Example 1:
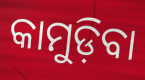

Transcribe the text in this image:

କାମୁଡ଼ିବା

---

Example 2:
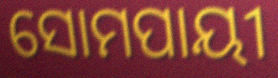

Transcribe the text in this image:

ସୋମପାୟୀ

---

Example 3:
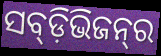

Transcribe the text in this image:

ସବ୍‍ଡ଼ିଭିଜନ୍‍ର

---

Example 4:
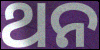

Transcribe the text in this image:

ଥନ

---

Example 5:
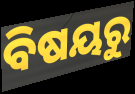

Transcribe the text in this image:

ବିଷୟରୁ